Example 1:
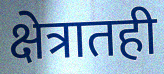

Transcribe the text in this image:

क्षेत्रातही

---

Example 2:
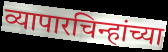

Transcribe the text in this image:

व्यापारचिन्हांच्या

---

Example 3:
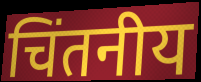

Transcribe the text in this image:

चिंतनीय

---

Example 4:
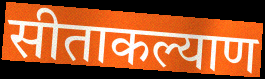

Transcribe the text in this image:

सीताकल्याण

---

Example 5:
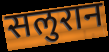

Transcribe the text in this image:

सलुरान